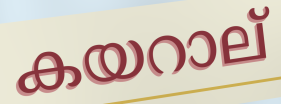
കയറാല്